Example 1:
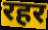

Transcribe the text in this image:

रहर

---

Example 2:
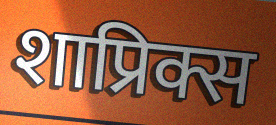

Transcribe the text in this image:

शाप्रिक्स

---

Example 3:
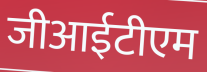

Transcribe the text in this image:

जीआईटीएम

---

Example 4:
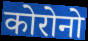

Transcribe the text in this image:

कोरोनो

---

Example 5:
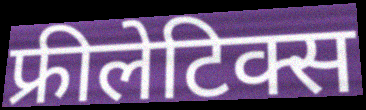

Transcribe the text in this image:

फ्रीलेटिक्स